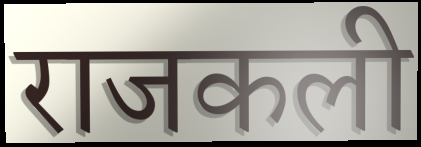
राजकली